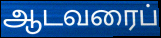
ஆடவரைப்